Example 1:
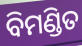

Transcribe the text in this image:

ବିମଣ୍ଡିତ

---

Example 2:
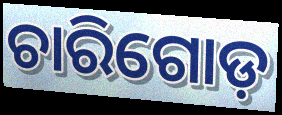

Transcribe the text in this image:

ଚାରିଗୋଡ଼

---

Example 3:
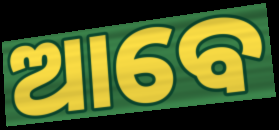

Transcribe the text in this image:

ଆବେ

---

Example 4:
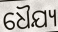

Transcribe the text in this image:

ଧୈଯ୍ୟ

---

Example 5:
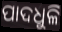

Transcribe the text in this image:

ପାଦଧୁଳି